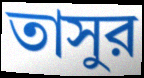
তাসুর